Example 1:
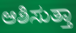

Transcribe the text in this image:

ಆಶಿಸುತ್ತಾ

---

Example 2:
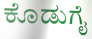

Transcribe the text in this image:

ಕೊಡುಗೈ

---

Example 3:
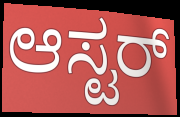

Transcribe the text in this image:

ಆಸ್ಟರ್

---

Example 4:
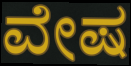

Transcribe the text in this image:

ವೇಷ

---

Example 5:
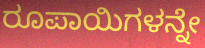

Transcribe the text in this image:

ರೂಪಾಯಿಗಳನ್ನೇ